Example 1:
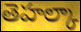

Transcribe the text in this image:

తెహల్కా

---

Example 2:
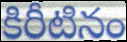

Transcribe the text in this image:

కిరీటినం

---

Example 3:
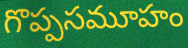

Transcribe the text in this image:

గొప్పసమూహం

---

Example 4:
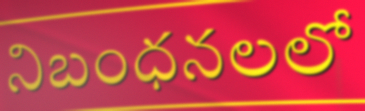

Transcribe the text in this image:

నిబంధనలలో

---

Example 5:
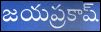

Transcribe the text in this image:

జయప్రకాష్